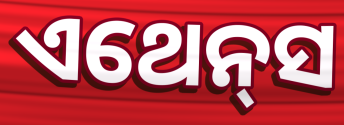
ଏଥେନ୍‌ସ